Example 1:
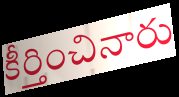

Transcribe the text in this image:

కీర్తించినారు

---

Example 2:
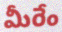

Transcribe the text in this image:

మీరేం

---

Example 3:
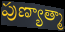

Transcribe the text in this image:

పుణ్యాత్మా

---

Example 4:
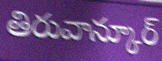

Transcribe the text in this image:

తిరువాన్కూర్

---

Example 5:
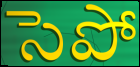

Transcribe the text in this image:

సెపో